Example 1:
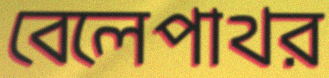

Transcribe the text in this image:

বেলেপাথর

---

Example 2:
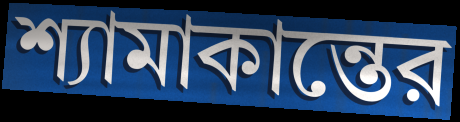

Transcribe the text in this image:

শ্যামাকান্তের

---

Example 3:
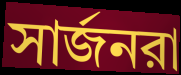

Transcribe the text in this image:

সার্জনরা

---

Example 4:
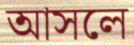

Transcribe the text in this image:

আসলে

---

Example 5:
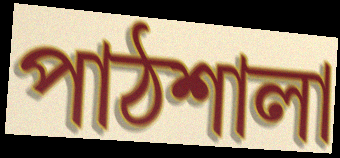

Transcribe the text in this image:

পাঠশালা